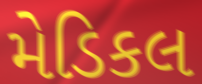
મેડિકલ